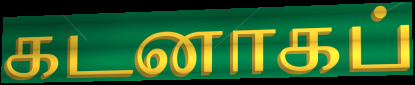
கடனாகப்